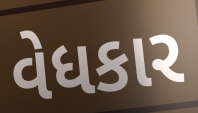
વેધકાર